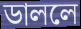
ডাললে